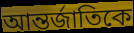
আন্তর্জাতিকে